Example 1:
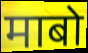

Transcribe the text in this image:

माबो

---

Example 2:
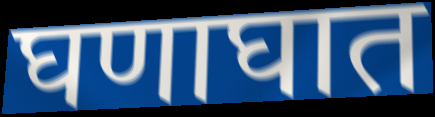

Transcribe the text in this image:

घणाघात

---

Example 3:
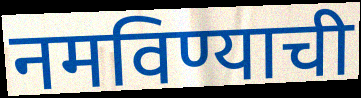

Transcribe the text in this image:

नमविण्याची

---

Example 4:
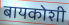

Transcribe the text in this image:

बायकोशी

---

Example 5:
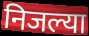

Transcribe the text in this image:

निजल्या